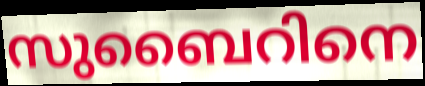
സുബൈറിനെ